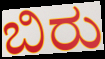
ಬಿರು